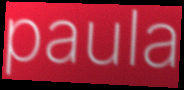
paula